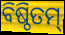
ବିଷ୍ଠିତମ୍